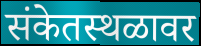
संकेतस्थळावर